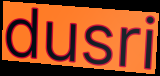
dusri